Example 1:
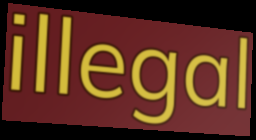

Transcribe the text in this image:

illegal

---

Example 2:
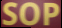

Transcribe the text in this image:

SOP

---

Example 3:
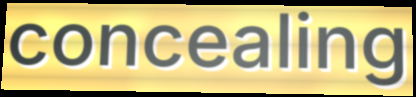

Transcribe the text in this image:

concealing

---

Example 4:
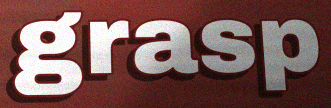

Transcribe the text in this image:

grasp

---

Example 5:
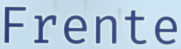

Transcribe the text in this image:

Frente